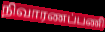
நிவாரணப்பணி